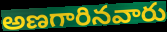
అణగారినవారు